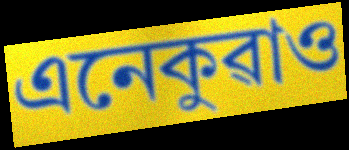
এনেকুৱাও